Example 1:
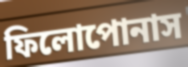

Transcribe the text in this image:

ফিলোপোনাস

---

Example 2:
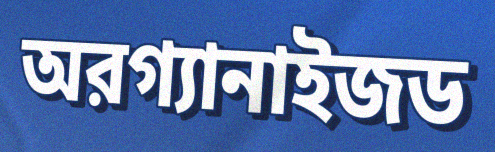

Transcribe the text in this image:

অরগ্যানাইজড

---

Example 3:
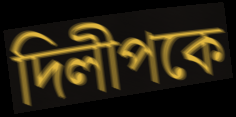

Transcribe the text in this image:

দিলীপকে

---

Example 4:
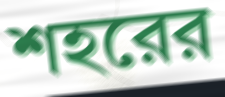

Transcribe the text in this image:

শহরের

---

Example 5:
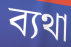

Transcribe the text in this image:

ব্যথা